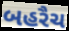
બહરૈચ